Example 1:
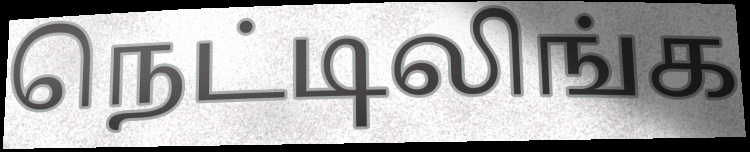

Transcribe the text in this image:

நெட்டிலிங்க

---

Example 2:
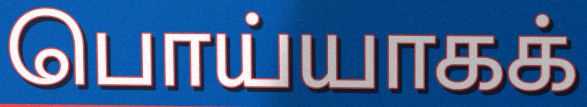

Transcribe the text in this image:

பொய்யாகக்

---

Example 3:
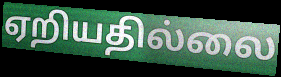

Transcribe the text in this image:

ஏறியதில்லை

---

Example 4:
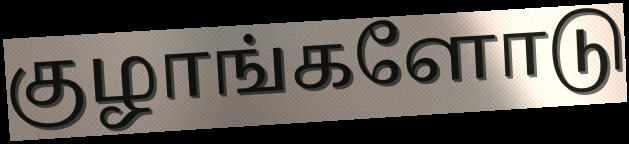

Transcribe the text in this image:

குழாங்களோடு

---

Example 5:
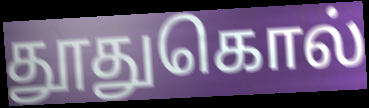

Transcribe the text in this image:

தூதுகொல்